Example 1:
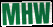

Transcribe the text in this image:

MHW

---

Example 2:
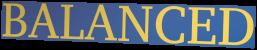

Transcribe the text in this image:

BALANCED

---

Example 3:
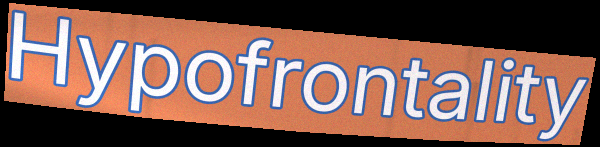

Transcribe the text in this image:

Hypofrontality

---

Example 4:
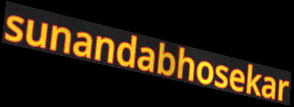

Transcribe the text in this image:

sunandabhosekar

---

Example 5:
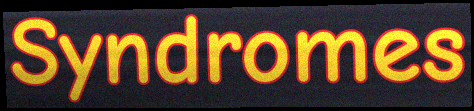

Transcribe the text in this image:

Syndromes